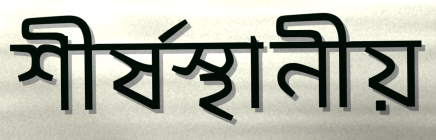
শীর্ষস্থানীয়